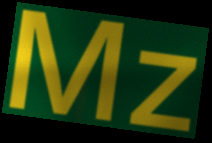
Mz